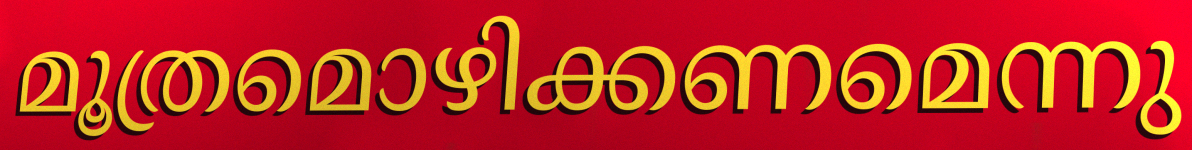
മൂത്രമൊഴിക്കണമെന്നു